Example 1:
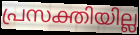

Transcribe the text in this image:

പ്രസക്തിയില്ല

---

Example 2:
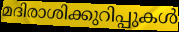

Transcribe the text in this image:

മദിരാശിക്കുറിപ്പുകൾ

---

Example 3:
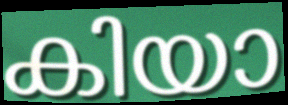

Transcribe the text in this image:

കിയാ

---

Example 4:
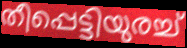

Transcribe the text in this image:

തീപ്പെട്ടിയുരച്ച്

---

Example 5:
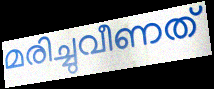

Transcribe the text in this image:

മരിച്ചുവീണത്